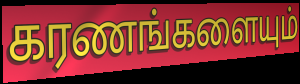
கரணங்களையும்